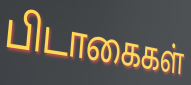
பிடாகைகள்